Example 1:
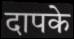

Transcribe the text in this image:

दापके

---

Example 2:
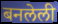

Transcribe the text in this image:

बनलेली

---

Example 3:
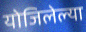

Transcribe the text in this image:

योजिलेल्या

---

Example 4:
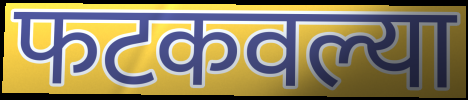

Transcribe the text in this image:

फटकवल्या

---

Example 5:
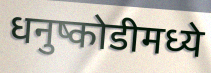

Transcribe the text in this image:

धनुष्कोडीमध्ये